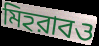
মিহরাবও